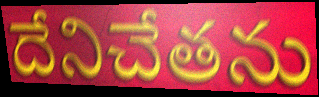
దేనిచేతను